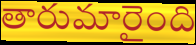
తారుమారైంది